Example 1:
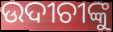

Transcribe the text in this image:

ଉଦୀଚୀଙ୍କୁ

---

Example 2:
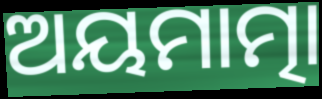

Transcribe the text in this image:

ଅୟମାତ୍ମା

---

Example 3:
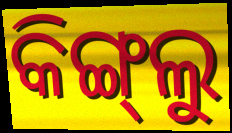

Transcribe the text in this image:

କିଙ୍ଗ୍‌ଲୁ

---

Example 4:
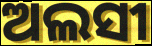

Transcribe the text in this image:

ଅଲସୀ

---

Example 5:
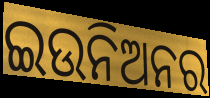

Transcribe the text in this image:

ଇଉନିଅନର